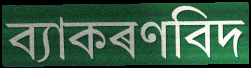
ব্যাকৰণবিদ